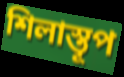
শিলাস্তূপ